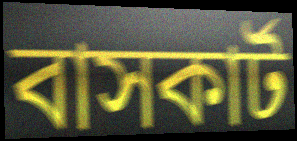
বাসকার্ট